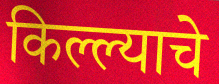
किल्ल्याचे